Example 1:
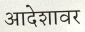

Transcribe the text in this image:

आदेशावर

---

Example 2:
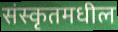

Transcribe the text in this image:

संस्कृतमधील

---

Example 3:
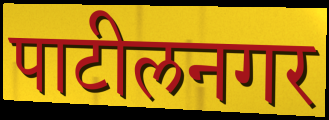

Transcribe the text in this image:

पाटीलनगर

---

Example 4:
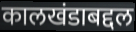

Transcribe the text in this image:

कालखंडाबद्दल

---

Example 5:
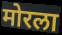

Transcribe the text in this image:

मोरला